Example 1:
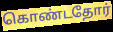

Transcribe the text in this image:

கொண்டதோர்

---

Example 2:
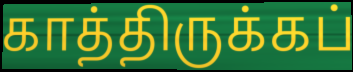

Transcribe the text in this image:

காத்திருக்கப்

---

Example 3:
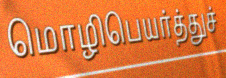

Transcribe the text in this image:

மொழிபெயர்த்துச்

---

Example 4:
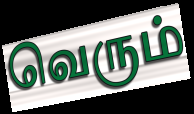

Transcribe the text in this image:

வெரும்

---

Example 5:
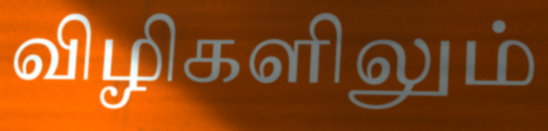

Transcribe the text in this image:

விழிகளிலும்